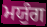
ਮਯੁੰਗ